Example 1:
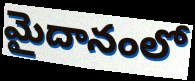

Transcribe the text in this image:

మైదానంలో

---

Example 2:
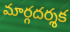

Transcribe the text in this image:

మార్గదర్శక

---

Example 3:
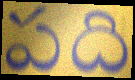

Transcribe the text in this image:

పది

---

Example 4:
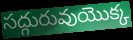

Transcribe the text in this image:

సద్గురువుయొక్క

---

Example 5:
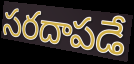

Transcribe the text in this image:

సరదాపడే